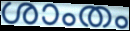
ശാംതം